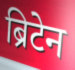
ब्रिटेन